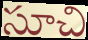
సూచి